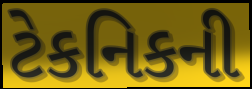
ટેકનિકની